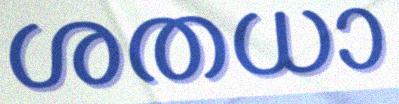
ശതധാ